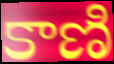
కాణి